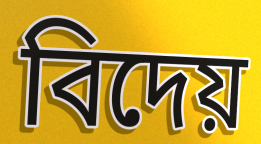
বিদেয়